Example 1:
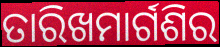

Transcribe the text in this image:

ତାରିଖମାର୍ଗଶିର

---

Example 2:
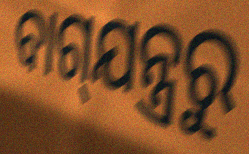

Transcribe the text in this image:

ବାଗ୍‌ଯନ୍ତ୍ରରୁ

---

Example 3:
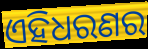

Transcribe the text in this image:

ଏହିଧରଣର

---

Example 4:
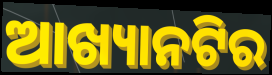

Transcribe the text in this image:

ଆଖ୍ୟାନଟିର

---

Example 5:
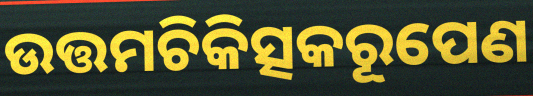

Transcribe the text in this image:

ଉତ୍ତମଚିକିତ୍ସକରୂପେଣ